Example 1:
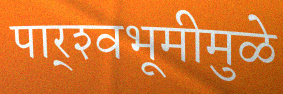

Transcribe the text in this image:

पार्श्वभूमीमुळे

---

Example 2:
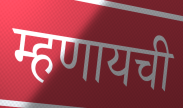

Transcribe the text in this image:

म्हणायची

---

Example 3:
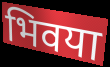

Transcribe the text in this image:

भिवया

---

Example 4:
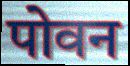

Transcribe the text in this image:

पोवन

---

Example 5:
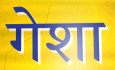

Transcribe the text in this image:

गेशा